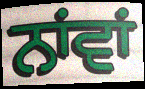
ਨਾਂਵਾਂ